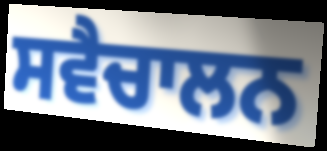
ਸਵੈਚਾਲਨ